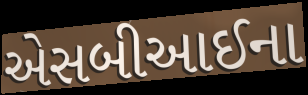
એસબીઆઈના